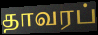
தாவரப்